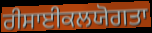
ਰੀਸਾਈਕਲਯੋਗਤਾ